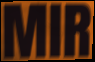
MIR